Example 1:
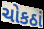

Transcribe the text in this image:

ચોકઠાં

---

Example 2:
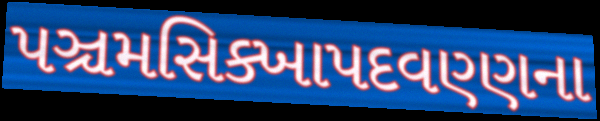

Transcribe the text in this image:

પઞ્ચમસિક્ખાપદવણ્ણના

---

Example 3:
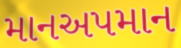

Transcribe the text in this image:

માનઅપમાન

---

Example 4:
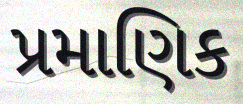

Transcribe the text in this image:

પ્રમાણિક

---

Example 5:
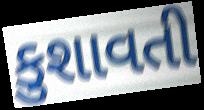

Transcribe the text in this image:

કુશાવતી